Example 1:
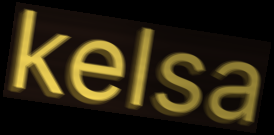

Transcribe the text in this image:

kelsa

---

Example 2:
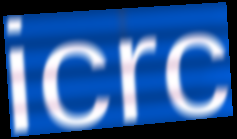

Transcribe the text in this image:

icrc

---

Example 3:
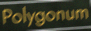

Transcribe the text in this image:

Polygonum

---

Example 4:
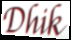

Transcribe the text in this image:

Dhik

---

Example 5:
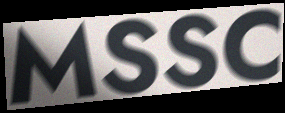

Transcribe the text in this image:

MSSC